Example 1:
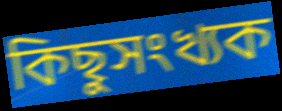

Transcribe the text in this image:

কিছুসংখ্যক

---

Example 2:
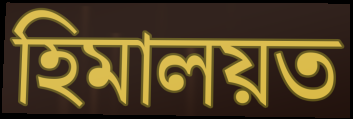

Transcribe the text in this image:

হিমালয়ত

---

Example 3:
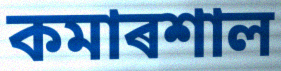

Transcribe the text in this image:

কমাৰশাল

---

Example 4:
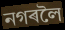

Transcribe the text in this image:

নগৰলৈ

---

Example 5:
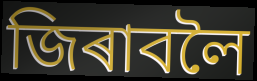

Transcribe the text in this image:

জিৰাবলৈ